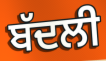
ਬੱਦਲੀ